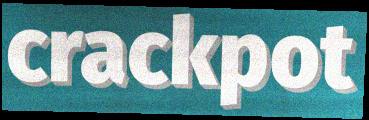
crackpot